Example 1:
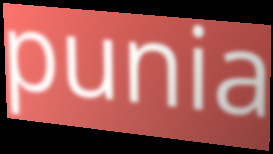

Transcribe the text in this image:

punia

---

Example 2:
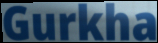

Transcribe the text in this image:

Gurkha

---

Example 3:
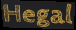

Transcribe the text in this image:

Hegal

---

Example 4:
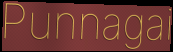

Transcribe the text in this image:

Punnagai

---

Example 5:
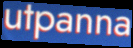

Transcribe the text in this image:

utpanna